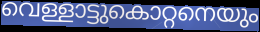
വെള്ളാട്ടുകൊറ്റനെയും